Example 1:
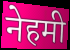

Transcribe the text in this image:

नेहमी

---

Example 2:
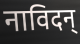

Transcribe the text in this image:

नाविदन्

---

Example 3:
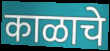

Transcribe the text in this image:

काळाचे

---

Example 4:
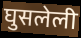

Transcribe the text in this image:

घुसलेली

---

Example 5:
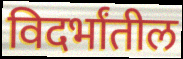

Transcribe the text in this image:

विदर्भांतील